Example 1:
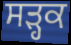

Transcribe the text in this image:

ਸੜ੍ਹਕ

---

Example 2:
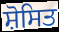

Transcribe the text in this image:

ਸ਼ੋਸਿਤ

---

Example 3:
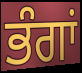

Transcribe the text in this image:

ਭੰਗਾਂ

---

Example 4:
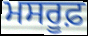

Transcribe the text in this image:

ਮਸਰੂਫ਼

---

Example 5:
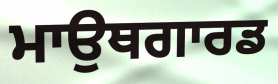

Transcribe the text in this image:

ਮਾਉਥਗਾਰਡ